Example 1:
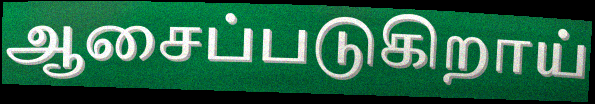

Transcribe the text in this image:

ஆசைப்படுகிறாய்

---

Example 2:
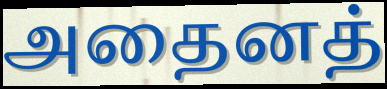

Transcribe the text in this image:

அதைனத்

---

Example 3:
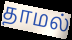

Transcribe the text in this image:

தாமல்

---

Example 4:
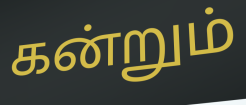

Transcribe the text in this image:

கன்றும்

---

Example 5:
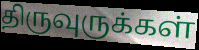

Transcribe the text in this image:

திருவுருக்கள்